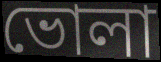
ভোলা